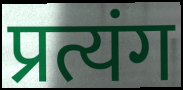
प्रत्यंग